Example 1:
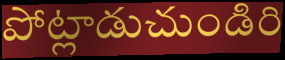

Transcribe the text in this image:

పోట్లాడుచుండిరి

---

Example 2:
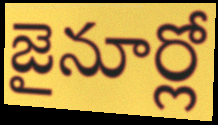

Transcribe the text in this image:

జైనూర్లో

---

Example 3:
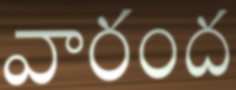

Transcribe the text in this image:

వారంద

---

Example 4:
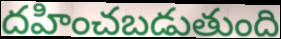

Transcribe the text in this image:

దహించబడుతుంది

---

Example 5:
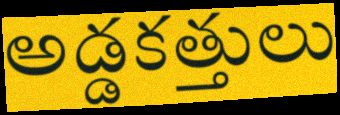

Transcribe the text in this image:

అడ్డకత్తులు